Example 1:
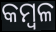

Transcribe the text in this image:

କମ୍ବଳ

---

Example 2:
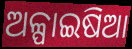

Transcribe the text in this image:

ଅଳ୍ପାଇଷିଆ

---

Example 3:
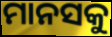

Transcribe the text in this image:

ମାନସକୁ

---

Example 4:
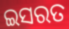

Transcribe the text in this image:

ଇସରତ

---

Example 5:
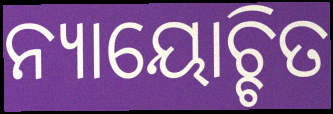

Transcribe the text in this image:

ନ୍ୟାୟୋଚ୍ଚିତ